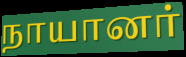
நாயானர்